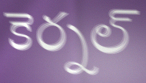
కెర్నల్